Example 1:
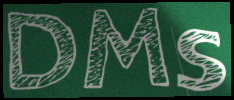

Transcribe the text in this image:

DMs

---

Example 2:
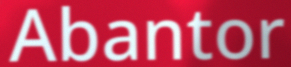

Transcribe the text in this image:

Abantor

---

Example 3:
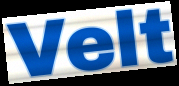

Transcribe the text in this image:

Velt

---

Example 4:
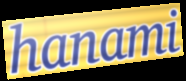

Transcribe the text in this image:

hanami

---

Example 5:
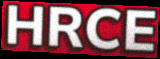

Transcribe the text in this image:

HRCE